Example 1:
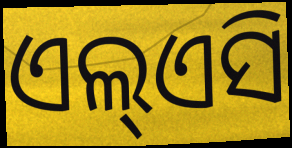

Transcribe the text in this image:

ଏଲ୍ଏସି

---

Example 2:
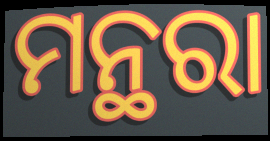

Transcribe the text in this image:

ମନ୍ଥରା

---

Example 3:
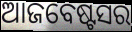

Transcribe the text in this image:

ଆଜବେଷ୍ଟସର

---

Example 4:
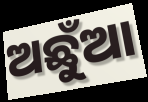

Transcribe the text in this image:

ଅଛୁଁଆ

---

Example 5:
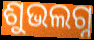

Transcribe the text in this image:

ଶୁଭଲଗ୍ନ